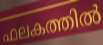
ഫലകത്തിൽ